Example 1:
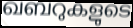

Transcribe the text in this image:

ഖബറുകളുടെ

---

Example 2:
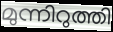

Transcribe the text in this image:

മുന്നിറുത്തി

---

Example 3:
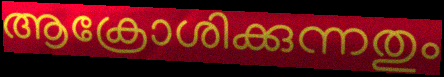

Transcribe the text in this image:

ആക്രോശിക്കുന്നതും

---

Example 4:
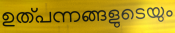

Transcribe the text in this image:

ഉത്പന്നങ്ങളുടെയും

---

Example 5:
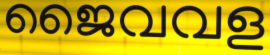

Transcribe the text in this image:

ജൈവവള